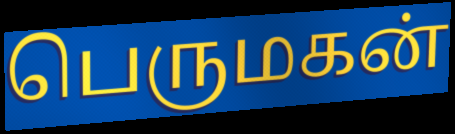
பெருமகன்